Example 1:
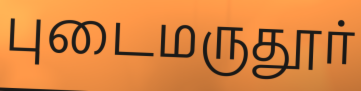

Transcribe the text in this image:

புடைமருதூர்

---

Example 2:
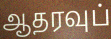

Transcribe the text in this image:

ஆதரவுப்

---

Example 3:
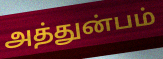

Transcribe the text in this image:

அத்துன்பம்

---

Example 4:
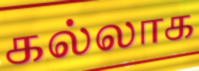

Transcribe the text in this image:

கல்லாக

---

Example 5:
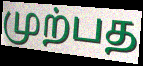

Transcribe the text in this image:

முற்பத